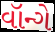
વૉન્ગે